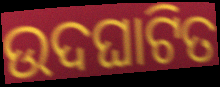
ଉଦଘାଟିତ